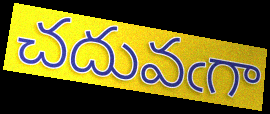
చదువఁగా